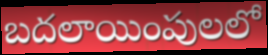
బదలాయింపులలో